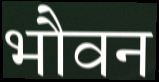
भौवन